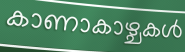
കാണാകാഴ്ചകൾ